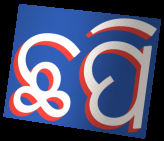
ଛପି